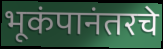
भूकंपानंतरचे